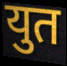
युत